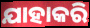
ଯାହାକରି